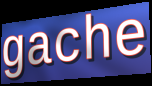
gache